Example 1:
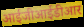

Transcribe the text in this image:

आईजीआईडीआर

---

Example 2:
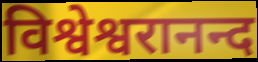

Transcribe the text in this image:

विश्वेश्वरानन्द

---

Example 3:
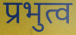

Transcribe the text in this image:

प्रभुत्व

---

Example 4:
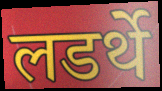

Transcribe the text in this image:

लडर्थे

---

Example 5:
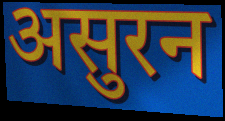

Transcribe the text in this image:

असुरन